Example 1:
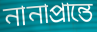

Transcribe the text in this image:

নানাপ্রান্তে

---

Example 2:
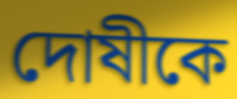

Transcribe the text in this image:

দোষীকে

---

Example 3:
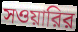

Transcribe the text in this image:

সওয়ারির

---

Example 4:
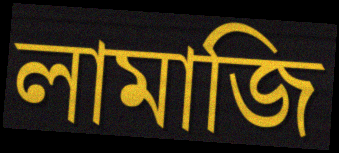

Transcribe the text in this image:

লামাজি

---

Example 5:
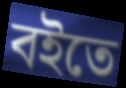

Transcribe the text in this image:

বইতে